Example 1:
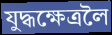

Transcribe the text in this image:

যুদ্ধক্ষেত্ৰলৈ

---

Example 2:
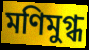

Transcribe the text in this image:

মণিমুগ্ধ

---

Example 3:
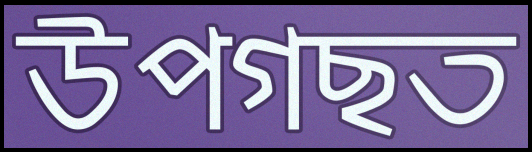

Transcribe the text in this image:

উপগছত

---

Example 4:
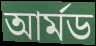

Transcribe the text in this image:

আৰ্মড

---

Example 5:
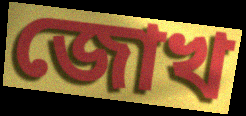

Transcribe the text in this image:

জোখ